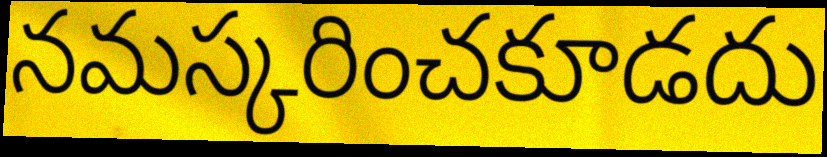
నమస్కరించకూడదు